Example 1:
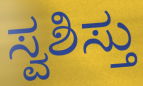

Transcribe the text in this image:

ಸ್ವಶಿಸ್ತು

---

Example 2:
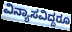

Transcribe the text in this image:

ವಿನ್ಯಾಸವಿದ್ದರೂ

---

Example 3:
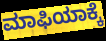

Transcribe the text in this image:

ಮಾಫಿಯಾಕ್ಕೆ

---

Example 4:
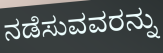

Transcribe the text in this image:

ನಡೆಸುವವರನ್ನು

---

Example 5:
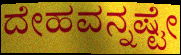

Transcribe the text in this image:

ದೇಹವನ್ನಷ್ಟೇ